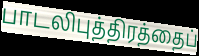
பாடலிபுத்திரத்தைப்